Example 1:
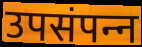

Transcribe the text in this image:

उपसंपन्न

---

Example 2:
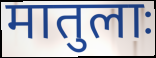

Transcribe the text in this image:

मातुलाः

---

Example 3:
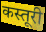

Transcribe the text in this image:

कस्तूरी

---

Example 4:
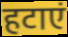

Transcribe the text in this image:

हटाएं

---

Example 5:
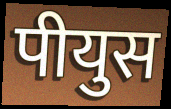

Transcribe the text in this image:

पीयुस